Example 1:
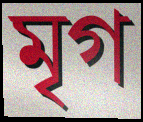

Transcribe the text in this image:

মৃগ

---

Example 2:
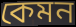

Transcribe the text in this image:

কেমন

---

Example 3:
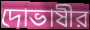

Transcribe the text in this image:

দোভাষীর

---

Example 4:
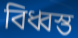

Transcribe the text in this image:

বিধ্বস্ত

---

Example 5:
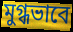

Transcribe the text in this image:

মুগ্ধভাবে